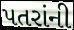
પતરાંની